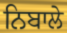
ਨਿਬਾਲੇ